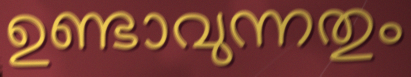
ഉണ്ടാവുന്നതും